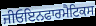
ਜੀਓਇਨਫਾਰਮੈਟਿਕਸ